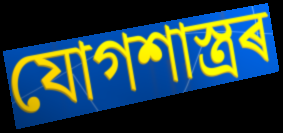
যোগশাস্ত্ৰৰ